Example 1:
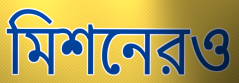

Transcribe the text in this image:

মিশনেরও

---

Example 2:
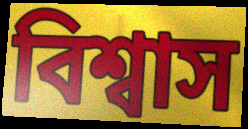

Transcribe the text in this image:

বিশ্বাস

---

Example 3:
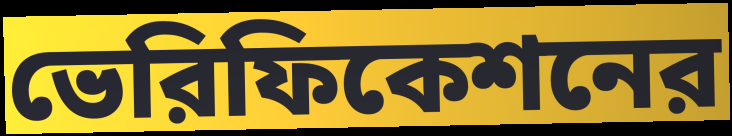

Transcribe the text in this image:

ভেরিফিকেশনের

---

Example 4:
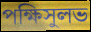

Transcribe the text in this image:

পক্ষিসুলভ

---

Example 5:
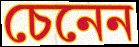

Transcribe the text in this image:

চেনেন